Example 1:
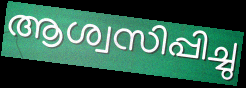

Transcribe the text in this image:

ആശ്വസിപ്പിച്ചു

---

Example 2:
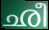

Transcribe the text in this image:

ഛീ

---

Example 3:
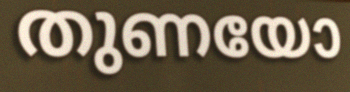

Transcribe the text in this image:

തുണയോ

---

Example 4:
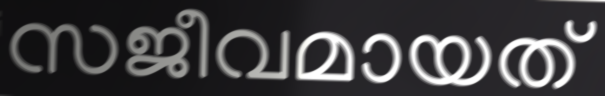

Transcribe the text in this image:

സജീവമായത്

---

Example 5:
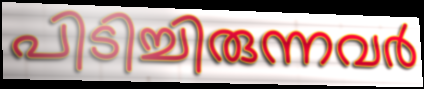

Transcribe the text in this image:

പിടിച്ചിരുന്നവർ